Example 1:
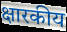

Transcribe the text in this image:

क्षारकीय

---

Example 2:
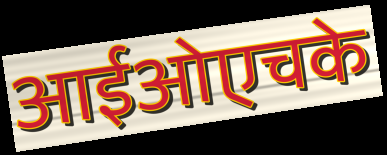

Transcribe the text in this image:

आईओएचके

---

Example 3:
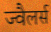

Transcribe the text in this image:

ज्वैलर्स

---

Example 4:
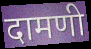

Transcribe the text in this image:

दामणी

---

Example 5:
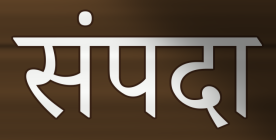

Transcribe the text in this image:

संपदा